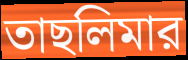
তাছলিমার